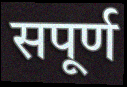
सपूर्ण